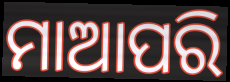
ମାଆପରି